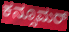
ಕನ್ಸೂಮರ್